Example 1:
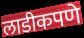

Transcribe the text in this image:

लाडीकपणे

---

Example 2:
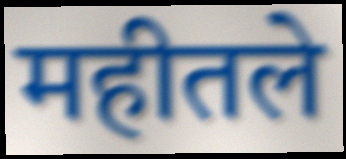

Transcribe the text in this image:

महीतले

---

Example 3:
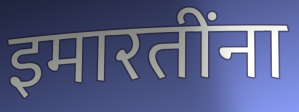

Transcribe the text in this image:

इमारतींना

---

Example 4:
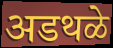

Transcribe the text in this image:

अडथळे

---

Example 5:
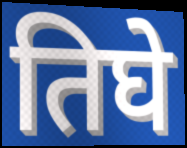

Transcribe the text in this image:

तिघे